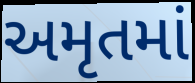
અમૃતમાં